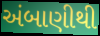
અંબાણીથી